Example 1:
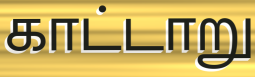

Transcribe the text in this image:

காட்டாறு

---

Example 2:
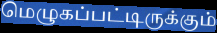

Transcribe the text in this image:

மெழுகப்பட்டிருக்கும்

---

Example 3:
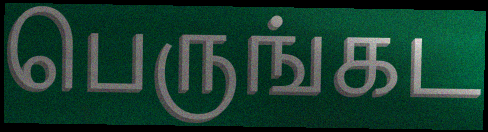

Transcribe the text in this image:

பெருங்கட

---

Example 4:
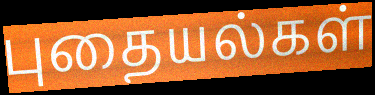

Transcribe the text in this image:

புதையல்கள்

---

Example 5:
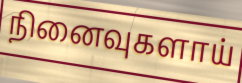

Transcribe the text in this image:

நினைவுகளாய்